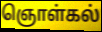
ஞொள்கல்